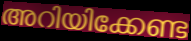
അറിയിക്കേണ്ട